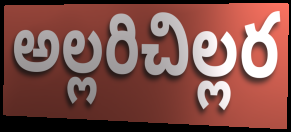
అల్లరిచిల్లర